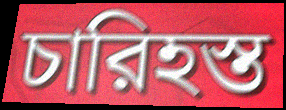
চারিহস্ত